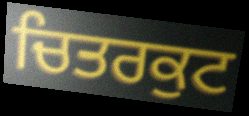
ਚਿਤਰਕੁਟ